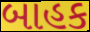
બાહક